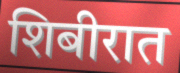
शिबीरात